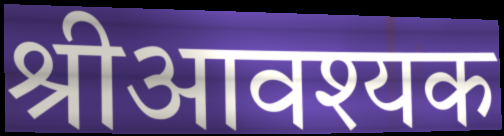
श्रीआवश्यक